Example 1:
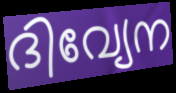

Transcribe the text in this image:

ദിവ്യേന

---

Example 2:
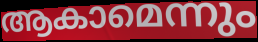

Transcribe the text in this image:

ആകാമെന്നും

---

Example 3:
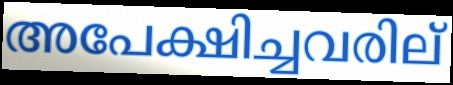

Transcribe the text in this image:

അപേക്ഷിച്ചവരില്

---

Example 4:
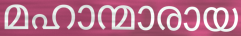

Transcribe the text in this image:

മഹാന്മാരായ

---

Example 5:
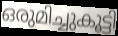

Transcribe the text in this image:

ഒരുമിച്ചുകൂട്ടി